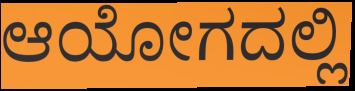
ಆಯೋಗದಲ್ಲಿ